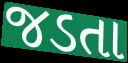
જડતા